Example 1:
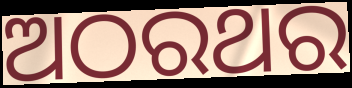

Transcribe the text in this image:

ଅଠରଥର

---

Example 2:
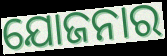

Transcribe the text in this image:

ଯୋଜନାର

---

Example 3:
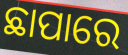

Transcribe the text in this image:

ଛାପାରେ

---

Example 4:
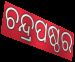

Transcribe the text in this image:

ଚନ୍ଦ୍ରପଷ୍ଠର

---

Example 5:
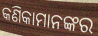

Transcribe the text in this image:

କଣିକାମାନଙ୍କର